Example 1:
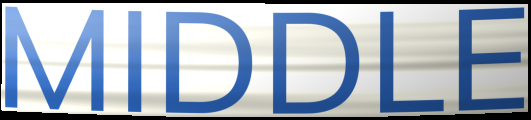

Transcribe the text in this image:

MIDDLE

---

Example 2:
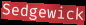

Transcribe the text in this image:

Sedgewick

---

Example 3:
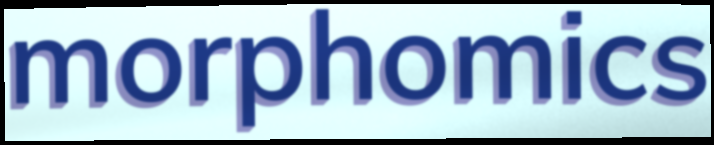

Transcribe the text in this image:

morphomics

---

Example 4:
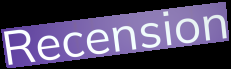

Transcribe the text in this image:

Recension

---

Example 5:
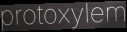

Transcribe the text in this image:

protoxylem